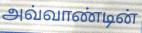
அவ்வாண்டின்